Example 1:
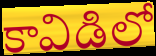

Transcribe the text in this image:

కావిడిలో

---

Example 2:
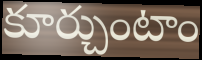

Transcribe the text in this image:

కూర్చుంటాం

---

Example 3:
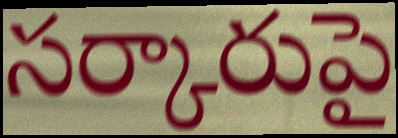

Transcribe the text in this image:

సర్కారుపై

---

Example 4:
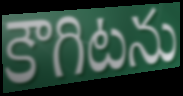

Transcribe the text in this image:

కౌగిటను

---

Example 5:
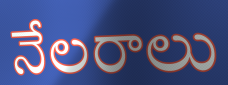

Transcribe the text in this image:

నేలరాలు